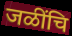
जळींचि